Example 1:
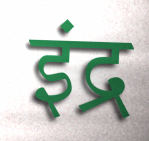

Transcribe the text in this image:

इंद्र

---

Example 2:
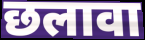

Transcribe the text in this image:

छलावा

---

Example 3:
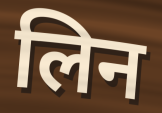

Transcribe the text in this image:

लिन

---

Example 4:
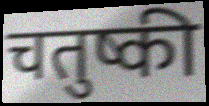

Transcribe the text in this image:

चतुष्की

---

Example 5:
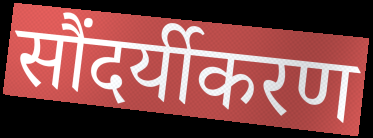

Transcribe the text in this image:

सौंदर्यीकरण